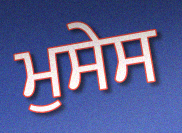
ਮੁਸੇਸ